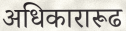
अधिकारारूढ